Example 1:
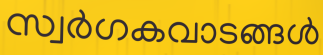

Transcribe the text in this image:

സ്വർഗകവാടങ്ങൾ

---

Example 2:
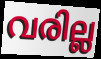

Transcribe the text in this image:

വരില്ല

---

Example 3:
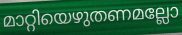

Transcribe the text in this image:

മാറ്റിയെഴുതണമല്ലോ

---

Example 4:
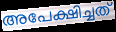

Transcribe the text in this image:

അപേക്ഷിച്ചത്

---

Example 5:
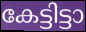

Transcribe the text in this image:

കേട്ടിട്ടാ